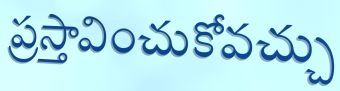
ప్రస్తావించుకోవచ్చు